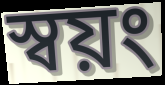
স্বয়ং